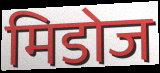
मिडोज